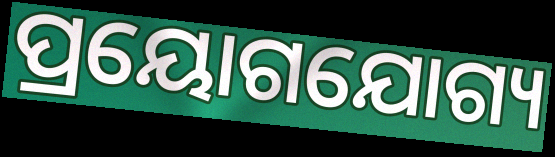
ପ୍ରୟୋଗଯୋଗ୍ୟ